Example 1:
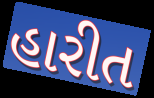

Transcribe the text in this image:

હારીત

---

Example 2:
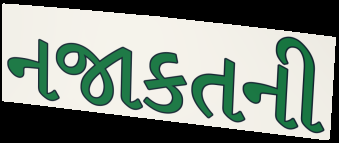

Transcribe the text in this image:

નજાકતની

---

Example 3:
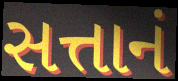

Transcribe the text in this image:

સત્તાનં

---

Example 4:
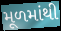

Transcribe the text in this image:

મૂળમાંથી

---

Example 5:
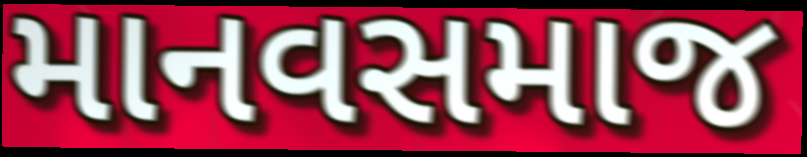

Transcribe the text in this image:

માનવસમાજ